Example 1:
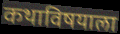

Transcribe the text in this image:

कथाविषयाला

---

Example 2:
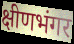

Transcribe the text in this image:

क्षीणभंगर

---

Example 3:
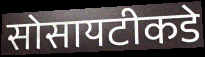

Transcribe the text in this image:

सोसायटीकडे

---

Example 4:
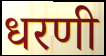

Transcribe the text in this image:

धरणी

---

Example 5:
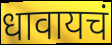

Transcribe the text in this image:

धावायचं